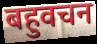
बहुवचन